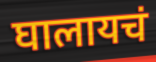
घालायचं